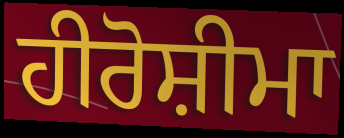
ਹੀਰੋਸ਼ੀਮਾ